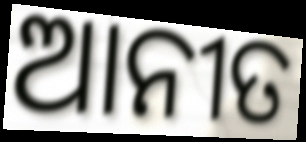
ଆନୀତ